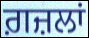
ਗ਼ਜ਼ਲਾਂ